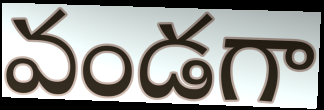
వండగా